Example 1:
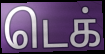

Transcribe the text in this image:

டெக்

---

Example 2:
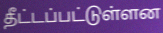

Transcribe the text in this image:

தீட்டப்பட்டுள்ளன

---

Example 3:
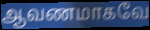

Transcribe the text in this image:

ஆவணமாகவே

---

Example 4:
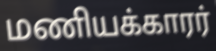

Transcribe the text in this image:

மணியக்காரர்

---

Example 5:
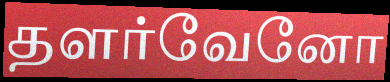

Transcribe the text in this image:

தளர்வேனோ